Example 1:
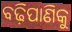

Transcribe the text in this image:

ବଢ଼ିପାଣିକୁ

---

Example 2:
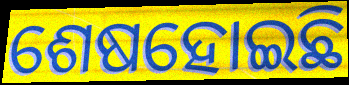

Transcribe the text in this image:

ଶେଷହୋଇଛି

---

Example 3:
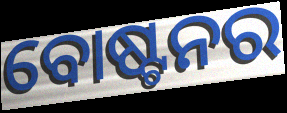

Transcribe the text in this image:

ବୋଷ୍ଟନର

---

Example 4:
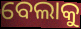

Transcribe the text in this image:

ବେଲାକୁ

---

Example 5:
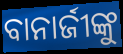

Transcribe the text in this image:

ବାନାର୍ଜୀଙ୍କୁ